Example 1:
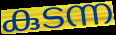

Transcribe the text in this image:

കുടന്ന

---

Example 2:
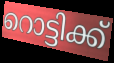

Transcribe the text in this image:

റൊട്ടിക്ക്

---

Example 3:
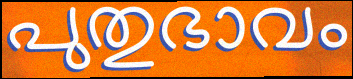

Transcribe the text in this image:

പുതുഭാവം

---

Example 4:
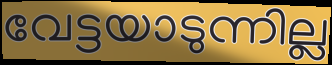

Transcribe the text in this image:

വേട്ടയാടുന്നില്ല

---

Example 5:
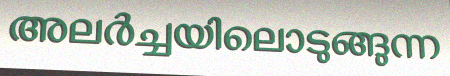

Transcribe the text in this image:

അലർച്ചയിലൊടുങ്ങുന്ന